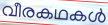
വീരകഥകൾ